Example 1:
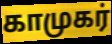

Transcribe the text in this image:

காமுகர்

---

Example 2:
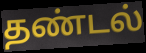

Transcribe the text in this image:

தண்டல்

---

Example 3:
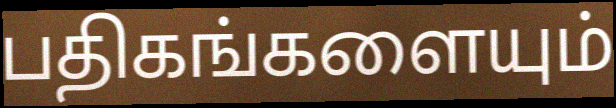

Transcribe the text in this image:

பதிகங்களையும்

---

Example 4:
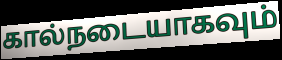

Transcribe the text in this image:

கால்நடையாகவும்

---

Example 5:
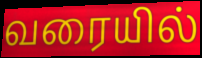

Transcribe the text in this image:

வரையில்